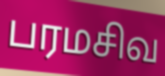
பரமசிவ